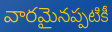
వారమైనప్పటికీ